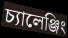
চ্যালেঞ্জিং